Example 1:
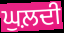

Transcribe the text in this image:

ਘੁਲ਼ਦੀ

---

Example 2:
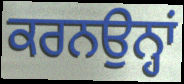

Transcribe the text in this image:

ਕਰਨਉਨ੍ਹਾਂ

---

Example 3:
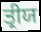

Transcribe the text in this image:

ਤ੍ਰੀਯ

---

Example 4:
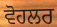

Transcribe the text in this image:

ਵੋਹਲਰ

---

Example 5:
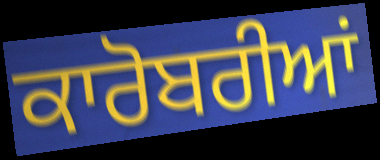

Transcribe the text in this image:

ਕਾਰੋਬਰੀਆਂ